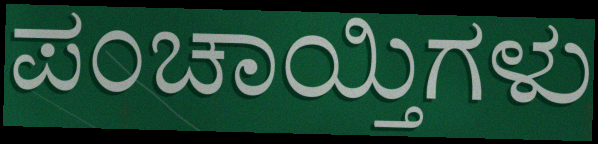
ಪಂಚಾಯ್ತಿಗಳು